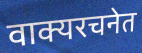
वाक्यरचनेत